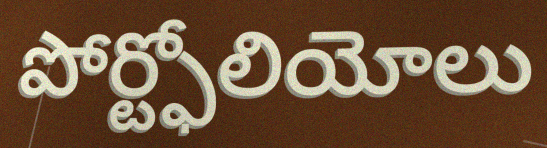
పోర్ట్ఫోలియోలు